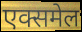
एक्समेल